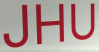
JHU